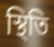
স্থিতি